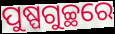
ପୁଷ୍ପଗୁଚ୍ଛରେ